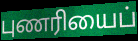
புணரியைப்